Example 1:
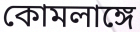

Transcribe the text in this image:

কোমলাঙ্গে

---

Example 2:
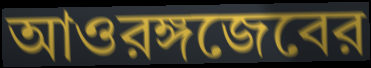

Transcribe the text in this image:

আওরঙ্গজেবের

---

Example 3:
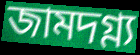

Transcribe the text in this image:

জামদগ্ন্য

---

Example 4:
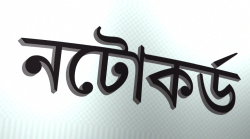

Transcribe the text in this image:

নটোকর্ড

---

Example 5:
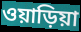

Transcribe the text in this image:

ওয়াড়িয়া